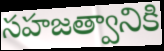
సహజత్వానికి